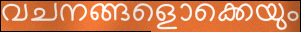
വചനങ്ങളൊക്കെയും